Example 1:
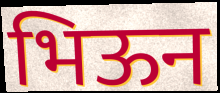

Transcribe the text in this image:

भिऊन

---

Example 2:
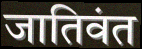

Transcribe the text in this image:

जातिवंत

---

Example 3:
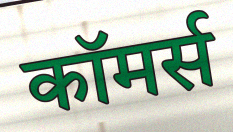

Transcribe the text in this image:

कॉमर्स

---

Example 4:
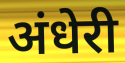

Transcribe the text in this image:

अंधेरी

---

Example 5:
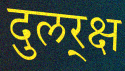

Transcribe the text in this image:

दुलर्क्ष